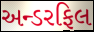
અન્ડરફિલ